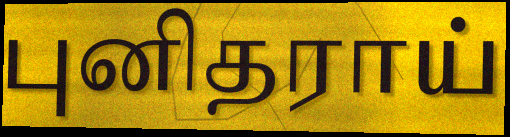
புனிதராய்